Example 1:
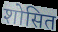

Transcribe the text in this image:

शोसित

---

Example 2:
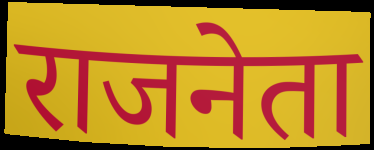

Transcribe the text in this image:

राजनेता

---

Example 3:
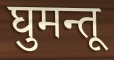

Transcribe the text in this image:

घुमन्तू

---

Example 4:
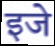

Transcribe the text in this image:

इजे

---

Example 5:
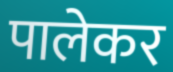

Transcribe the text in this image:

पालेकर